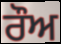
ਰੌਅ